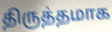
திருத்தமாக